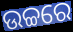
ଉଚ୍ଚରେ